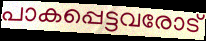
പാകപ്പെട്ടവരോട്